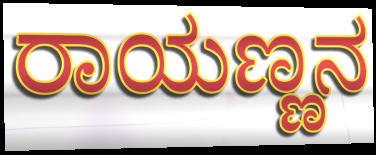
ರಾಯಣ್ಣನ